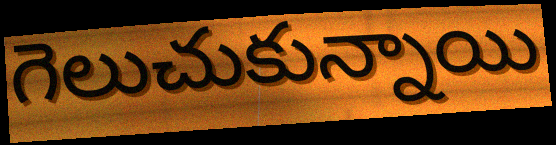
గెలుచుకున్నాయి